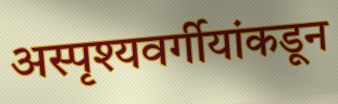
अस्पृश्यवर्गीयांकडून